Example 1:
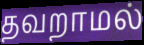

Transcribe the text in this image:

தவறாமல்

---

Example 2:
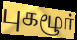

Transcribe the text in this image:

புகழூர்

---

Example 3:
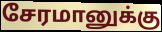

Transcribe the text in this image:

சேரமானுக்கு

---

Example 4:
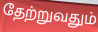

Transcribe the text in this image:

தேற்றுவதும்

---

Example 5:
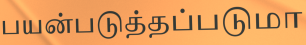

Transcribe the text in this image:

பயன்படுத்தப்படுமா